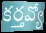
కర్తవ్యో